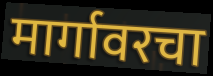
मार्गावरचा